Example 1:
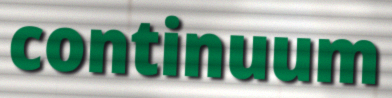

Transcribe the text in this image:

continuum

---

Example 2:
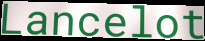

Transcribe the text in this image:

Lancelot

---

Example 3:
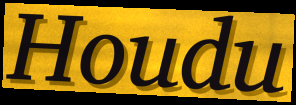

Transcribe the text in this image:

Houdu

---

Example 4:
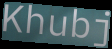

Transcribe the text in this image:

Khubj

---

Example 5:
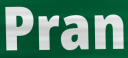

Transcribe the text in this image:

Pran